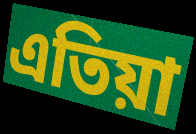
এতিয়া